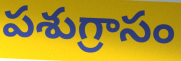
పశుగ్రాసం